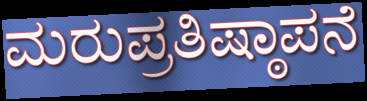
ಮರುಪ್ರತಿಷ್ಠಾಪನೆ